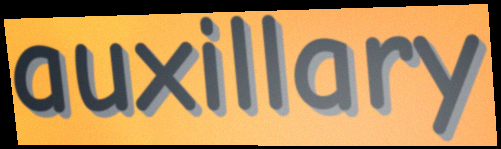
auxillary